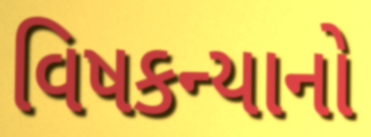
વિષકન્યાનો